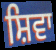
ਸ਼ਿਵਾ